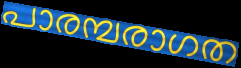
പാരമ്പരാഗത